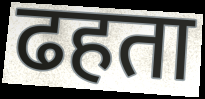
ढहता